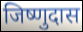
जिष्णुदास